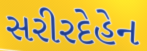
સરીરદેહેન